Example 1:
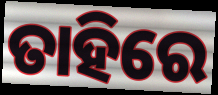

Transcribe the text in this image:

ତାହିରେ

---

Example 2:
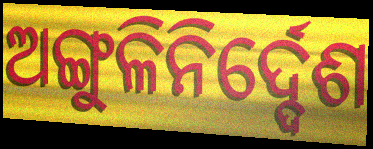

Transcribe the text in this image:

ଅଙ୍ଗୁଳିନିର୍ଦ୍ଦେଶ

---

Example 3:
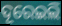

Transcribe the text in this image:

ଦୂରେଇଲି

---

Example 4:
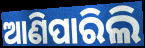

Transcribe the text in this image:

ଆଣିପାରିଲି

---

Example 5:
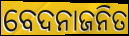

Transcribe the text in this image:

ବେଦନାଜନିତ